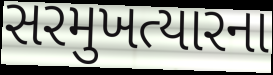
સરમુખત્યારના